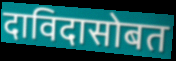
दाविदासोबत